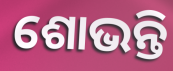
ଶୋଭନ୍ତି